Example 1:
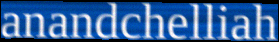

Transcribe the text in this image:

anandchelliah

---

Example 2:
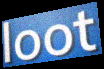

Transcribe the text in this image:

loot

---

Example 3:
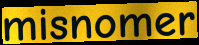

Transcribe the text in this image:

misnomer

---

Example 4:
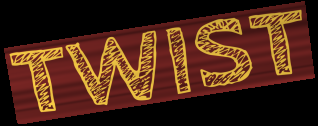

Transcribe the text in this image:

TWIST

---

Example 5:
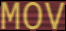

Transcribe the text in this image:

MOV